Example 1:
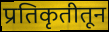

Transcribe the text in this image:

प्रतिकृतीतून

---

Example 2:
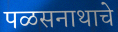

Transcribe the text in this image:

पळसनाथाचे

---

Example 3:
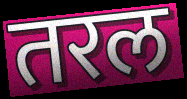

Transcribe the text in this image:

तरल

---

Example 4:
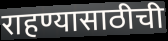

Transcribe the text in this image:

राहण्यासाठीची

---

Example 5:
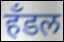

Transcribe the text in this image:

हॅंडल